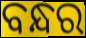
ବନ୍ଧର